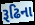
રૂઢિના